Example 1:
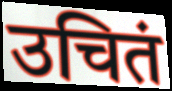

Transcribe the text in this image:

उचितं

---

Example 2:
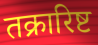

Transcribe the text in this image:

तक्रारिष्ट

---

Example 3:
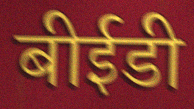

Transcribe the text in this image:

बीईडी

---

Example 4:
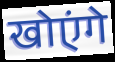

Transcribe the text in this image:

खोएंगे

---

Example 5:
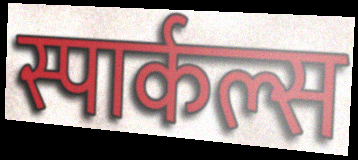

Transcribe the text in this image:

स्पार्कल्स